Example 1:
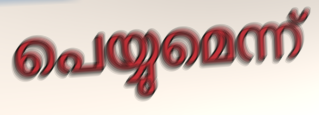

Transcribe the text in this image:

പെയ്യുമെന്ന്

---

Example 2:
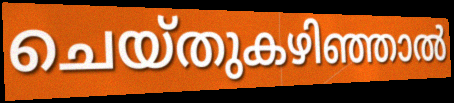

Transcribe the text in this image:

ചെയ്തുകഴിഞ്ഞാൽ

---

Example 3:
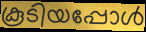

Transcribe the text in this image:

കൂടിയപ്പോൾ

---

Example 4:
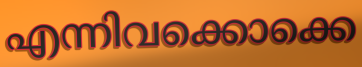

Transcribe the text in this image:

എന്നിവക്കൊക്കെ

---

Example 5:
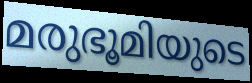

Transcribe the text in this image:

മരുഭൂമിയുടെ